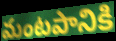
మంటపానికి